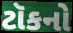
ટૉકનો